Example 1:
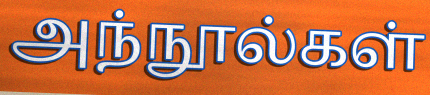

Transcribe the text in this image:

அந்நூல்கள்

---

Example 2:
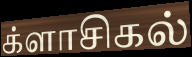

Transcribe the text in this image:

க்ளாசிகல்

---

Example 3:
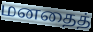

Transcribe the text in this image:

மனதைத்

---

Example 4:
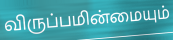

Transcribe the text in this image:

விருப்பமின்மையும்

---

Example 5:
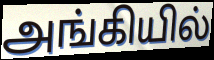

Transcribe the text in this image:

அங்கியில்